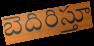
బెదిరిస్తూ